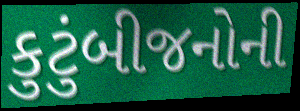
કુટુંબીજનોની